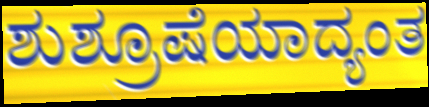
ಶುಶ್ರೂಷೆಯಾದ್ಯಂತ